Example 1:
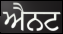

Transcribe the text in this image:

ਐਨਟ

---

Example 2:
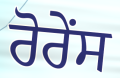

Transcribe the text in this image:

ਰੋਰੇਂਸ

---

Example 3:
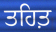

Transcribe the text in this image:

ਤਹਿਤ਼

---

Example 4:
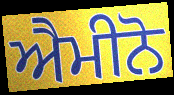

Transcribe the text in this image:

ਐਮੀਨੋ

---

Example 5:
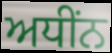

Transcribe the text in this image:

ਅਧੀਂਨ